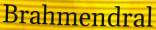
Brahmendral